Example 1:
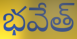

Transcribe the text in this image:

భవేత్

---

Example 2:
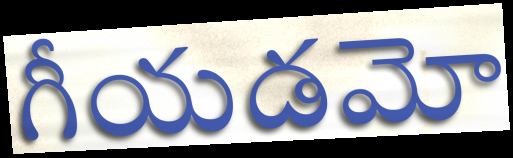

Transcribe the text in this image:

గీయడమో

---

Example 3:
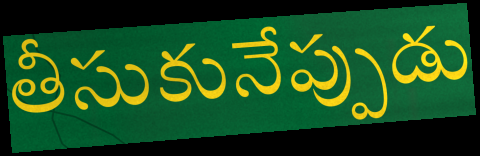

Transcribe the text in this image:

తీసుకునేప్పుడు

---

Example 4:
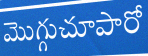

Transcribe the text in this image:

మొగ్గుచూపారో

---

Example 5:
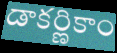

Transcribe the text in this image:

డాకర్ణికాం